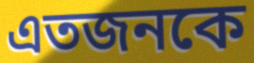
এতজনকে